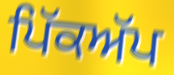
ਪਿੱਕਅੱਪ